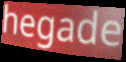
hegade